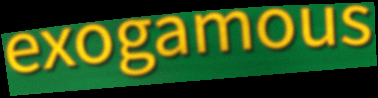
exogamous